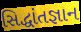
સિદ્ધાંતજ્ઞાન